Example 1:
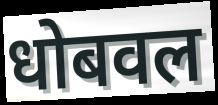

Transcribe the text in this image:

धोबवल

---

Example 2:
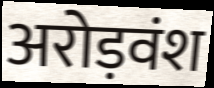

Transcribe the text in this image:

अरोड़वंश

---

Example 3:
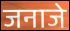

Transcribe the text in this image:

जनाजे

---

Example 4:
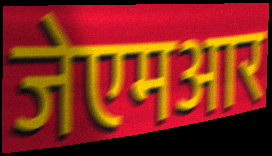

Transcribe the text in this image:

जेएमआर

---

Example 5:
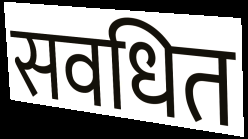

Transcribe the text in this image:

सवधित